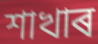
শাখাৰ